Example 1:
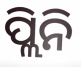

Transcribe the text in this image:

ପ୍ଲିନି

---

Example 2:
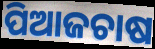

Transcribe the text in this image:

ପିଆଜଚାଷ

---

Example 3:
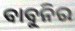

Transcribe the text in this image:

ବାବୁନିର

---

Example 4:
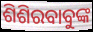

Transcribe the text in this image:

ଶିଶିରବାବୁଙ୍କ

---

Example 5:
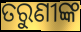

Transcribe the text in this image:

ତରୁଣୀଙ୍କ